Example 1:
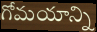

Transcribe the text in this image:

గోమయాన్ని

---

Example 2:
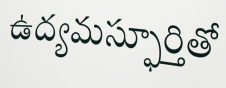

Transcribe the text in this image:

ఉద్యమస్ఫూర్తితో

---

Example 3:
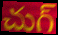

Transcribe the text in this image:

చుగ్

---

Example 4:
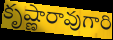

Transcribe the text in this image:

కృష్ణారావుగారి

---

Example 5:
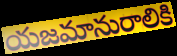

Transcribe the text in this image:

యజమానురాలికి